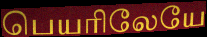
பெயரிலேயே